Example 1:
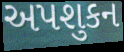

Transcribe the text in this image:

અપશુકન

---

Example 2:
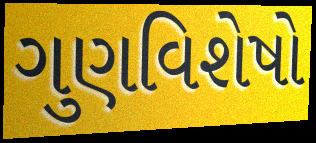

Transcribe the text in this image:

ગુણવિશેષો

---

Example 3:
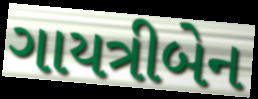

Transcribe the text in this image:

ગાયત્રીબેન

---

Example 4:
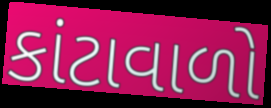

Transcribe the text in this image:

કાંટાવાળો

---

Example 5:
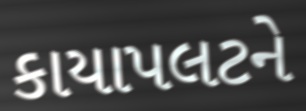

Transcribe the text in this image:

કાયાપલટને